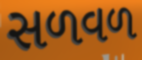
સળવળ